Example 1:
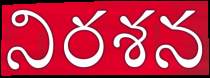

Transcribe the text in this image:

నిరశన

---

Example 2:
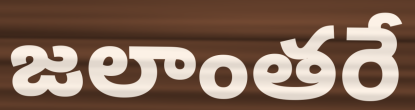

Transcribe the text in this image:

జలాంతరే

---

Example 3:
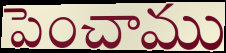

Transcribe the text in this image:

పెంచాము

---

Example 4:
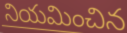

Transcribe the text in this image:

నియమించిన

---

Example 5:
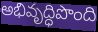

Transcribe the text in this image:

అభివృద్ధిపొంది